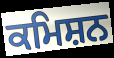
ਕਮਿਸ਼ਨ